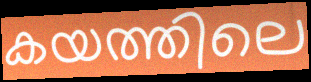
കയത്തിലെ